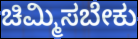
ಚಿಮ್ಮಿಸಬೇಕು